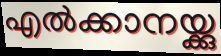
എൽക്കാനയ്ക്കു